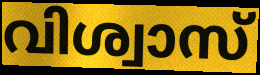
വിശ്വാസ്